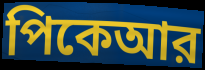
পিকেআর